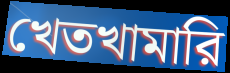
খেতখামারি